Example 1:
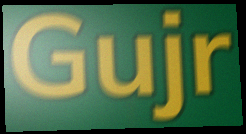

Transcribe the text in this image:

Gujr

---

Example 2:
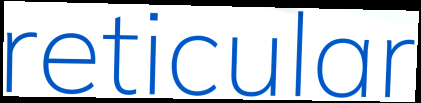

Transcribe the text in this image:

reticular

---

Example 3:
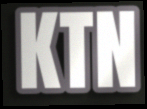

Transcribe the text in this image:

KTN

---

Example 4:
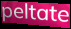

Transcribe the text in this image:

peltate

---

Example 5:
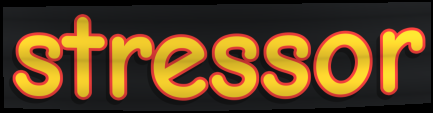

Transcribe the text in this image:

stressor